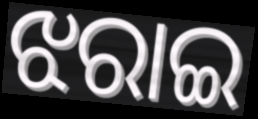
ଝରାଇ